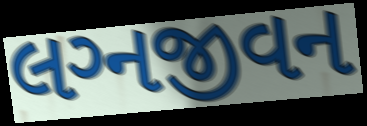
લગ્‍નજીવન